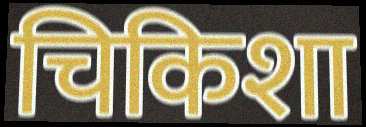
चिकिशा